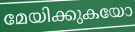
മേയിക്കുകയോ